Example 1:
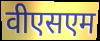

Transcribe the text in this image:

वीएसएम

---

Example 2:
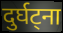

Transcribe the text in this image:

दुर्घट्ना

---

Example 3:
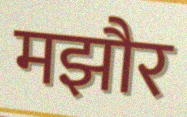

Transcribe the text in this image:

मझौर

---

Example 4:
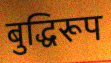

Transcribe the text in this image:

बुद्धिरूप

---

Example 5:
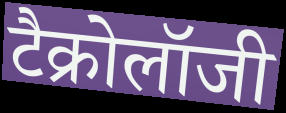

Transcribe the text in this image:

टैक्रोलॉजी